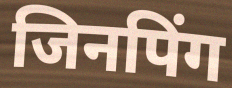
जिनपिंग